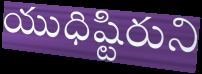
యుధిష్టిరుని